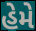
હેમે